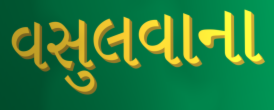
વસુલવાના